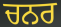
ਚਨਰ